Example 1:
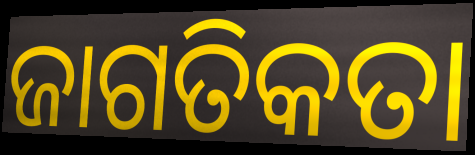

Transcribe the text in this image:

ଜାଗତିକତା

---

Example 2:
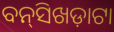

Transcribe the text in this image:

ବନ୍‌ସିଖଡ଼ାଟା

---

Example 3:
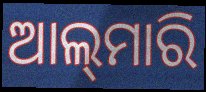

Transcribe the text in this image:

ଆଲ୍‌ମାରି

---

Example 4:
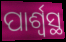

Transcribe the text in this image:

ପାର୍ଶ୍ବସ୍ଥ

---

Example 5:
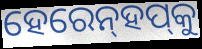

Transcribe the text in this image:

ହେରେନ୍‌ହପ୍‌କୁ